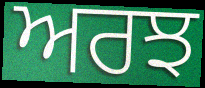
ਅਰਝ